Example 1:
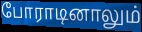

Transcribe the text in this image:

போராடினாலும்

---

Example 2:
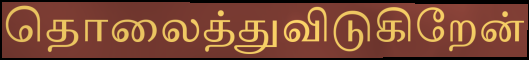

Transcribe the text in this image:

தொலைத்துவிடுகிறேன்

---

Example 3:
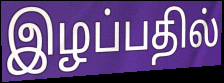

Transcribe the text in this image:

இழப்பதில்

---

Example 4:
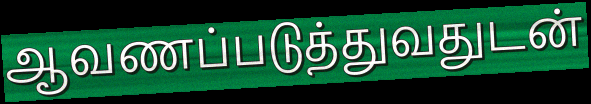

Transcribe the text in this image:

ஆவணப்படுத்துவதுடன்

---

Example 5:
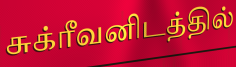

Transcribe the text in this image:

சுக்ரீவனிடத்தில்